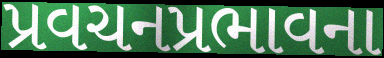
પ્રવચનપ્રભાવના